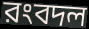
রংবদল